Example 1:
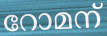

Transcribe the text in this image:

റോമന്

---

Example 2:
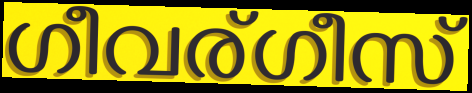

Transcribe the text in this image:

ഗീവര്ഗീസ്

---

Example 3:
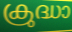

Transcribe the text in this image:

ക്രുദ്ധാ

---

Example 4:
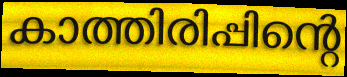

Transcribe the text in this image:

കാത്തിരിപ്പിന്റെ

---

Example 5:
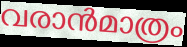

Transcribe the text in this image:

വരാൻമാത്രം